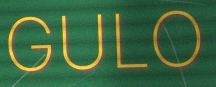
GULO